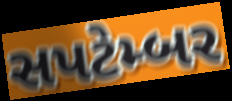
સપટેમ્બર